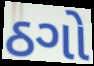
ઠગો